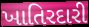
ખાતિરદારી